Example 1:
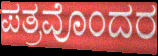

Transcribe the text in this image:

ಪತ್ರವೊಂದರ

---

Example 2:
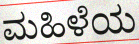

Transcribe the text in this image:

ಮಹಿಳೆಯ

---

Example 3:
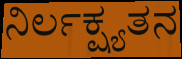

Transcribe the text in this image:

ನಿರ್ಲಕ್ಷ್ಯತನ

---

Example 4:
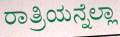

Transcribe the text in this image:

ರಾತ್ರಿಯನ್ನೆಲ್ಲಾ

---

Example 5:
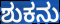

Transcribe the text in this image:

ಶುಕನು